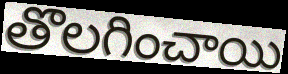
తొలగించాయి